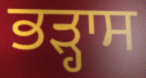
ਭੜ੍ਹਾਸ